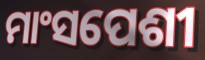
ମାଂସପେଶୀ